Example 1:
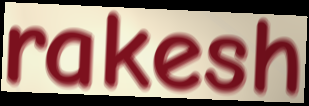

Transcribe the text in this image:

rakesh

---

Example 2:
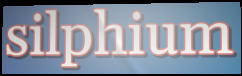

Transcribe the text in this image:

silphium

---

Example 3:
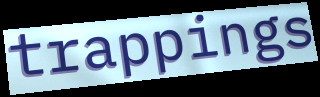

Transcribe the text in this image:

trappings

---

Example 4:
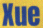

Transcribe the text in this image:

Xue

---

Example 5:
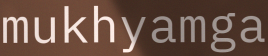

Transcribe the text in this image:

mukhyamga